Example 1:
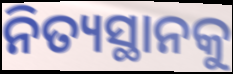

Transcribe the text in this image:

ନିତ୍ୟସ୍ଥାନକୁ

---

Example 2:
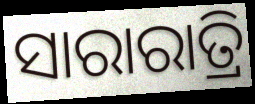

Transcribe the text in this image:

ସାରାରାତ୍ରି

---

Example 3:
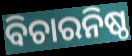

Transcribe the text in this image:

ବିଚାରନିଷ୍ଠ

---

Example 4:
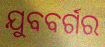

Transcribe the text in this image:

ଯୁବବର୍ଗର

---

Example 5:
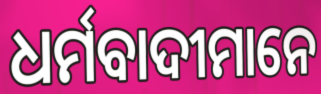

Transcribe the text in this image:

ଧର୍ମବାଦୀମାନେ